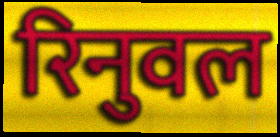
रिनुवल